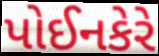
પોઈનકેરે